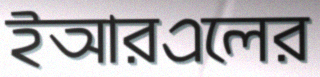
ইআরএলের